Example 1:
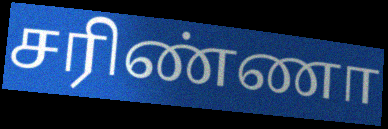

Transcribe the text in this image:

சரிண்ணா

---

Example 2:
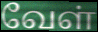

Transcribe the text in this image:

வேள்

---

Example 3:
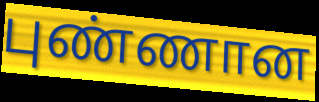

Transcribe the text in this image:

புண்ணான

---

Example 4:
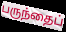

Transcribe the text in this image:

பருந்தைப்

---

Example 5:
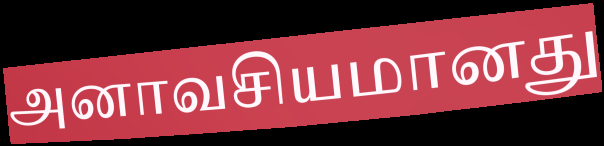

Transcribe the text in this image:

அனாவசியமானது